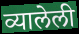
व्यालेली